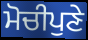
ਮੋਚੀਪੁਣੇ